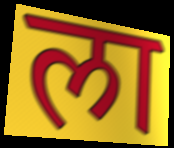
ला